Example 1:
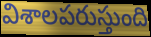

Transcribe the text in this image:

విశాలపరుస్తుంది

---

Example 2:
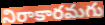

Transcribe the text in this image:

నిరాకారమగు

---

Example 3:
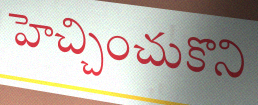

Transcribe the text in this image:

హెచ్చించుకొని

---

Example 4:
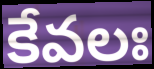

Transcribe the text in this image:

కేవలః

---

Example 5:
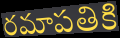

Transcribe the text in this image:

రమాపతికి